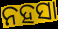
ନହସା